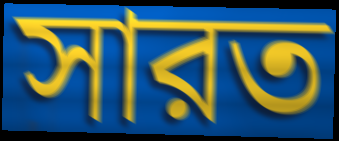
সারত